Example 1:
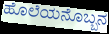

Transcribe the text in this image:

ಹೊಲೆಯನೊಬ್ಬನ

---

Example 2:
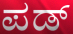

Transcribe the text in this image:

ಪಡ್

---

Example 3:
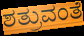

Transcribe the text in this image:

ಶತ್ರುವಂತೆ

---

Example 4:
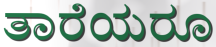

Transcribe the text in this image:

ತಾರೆಯರೂ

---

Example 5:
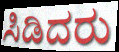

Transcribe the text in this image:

ಸಿಡಿದರು